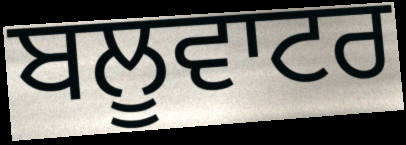
ਬਲੂਵਾਟਰ